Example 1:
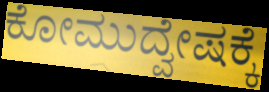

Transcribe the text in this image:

ಕೋಮುದ್ವೇಷಕ್ಕೆ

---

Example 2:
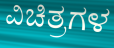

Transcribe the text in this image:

ವಿಚಿತ್ರಗಳ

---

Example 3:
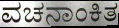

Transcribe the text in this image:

ವಚನಾಂಕಿತ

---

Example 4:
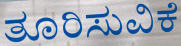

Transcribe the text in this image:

ತೂರಿಸುವಿಕೆ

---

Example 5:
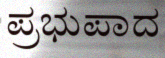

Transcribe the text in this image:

ಪ್ರಭುಪಾದ